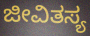
ಜೀವಿತಸ್ಯ